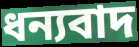
ধন্যবাদ